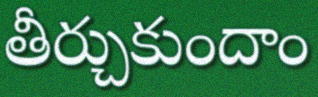
తీర్చుకుందాం